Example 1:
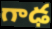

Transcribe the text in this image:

గాఢ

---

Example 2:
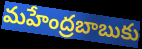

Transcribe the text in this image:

మహేంద్రబాబుకు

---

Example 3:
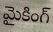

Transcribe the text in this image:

మైకింగ్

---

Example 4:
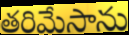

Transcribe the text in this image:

తరిమేసాను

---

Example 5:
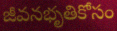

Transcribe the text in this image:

జీవనభృతికోసం